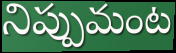
నిప్పుమంట